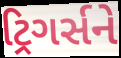
ટ્રિગર્સને